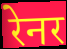
रेनर